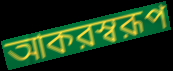
আকরস্বরূপ